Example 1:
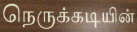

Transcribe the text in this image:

நெருக்கடியின்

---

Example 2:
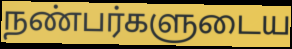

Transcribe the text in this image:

நண்பர்களுடைய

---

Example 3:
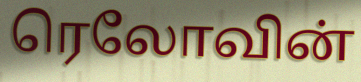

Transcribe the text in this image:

ரெலோவின்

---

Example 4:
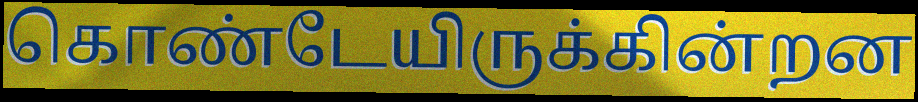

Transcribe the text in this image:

கொண்டேயிருக்கின்றன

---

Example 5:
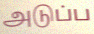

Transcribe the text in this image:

அடுப்ப